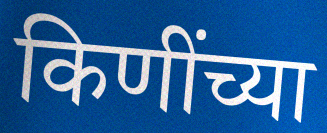
किणींच्या